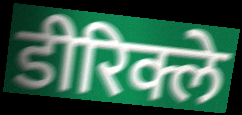
डीरिक्ले